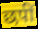
छपीं